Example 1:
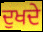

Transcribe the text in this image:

ਦੁਖਦੇ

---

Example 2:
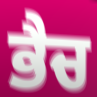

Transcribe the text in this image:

ਭੈਚ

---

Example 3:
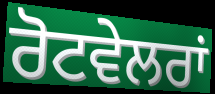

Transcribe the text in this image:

ਰੋਟਵੇਲਰਾਂ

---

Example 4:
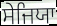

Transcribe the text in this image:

ਸੇਜਿਯਾ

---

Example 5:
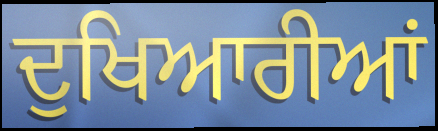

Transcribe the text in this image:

ਦੁਖਿਆਰੀਆਂ